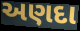
અણદા